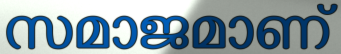
സമാജമാണ്